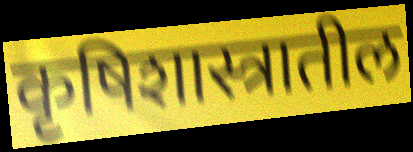
कृषिशास्त्रातील